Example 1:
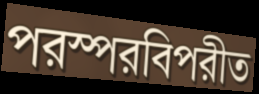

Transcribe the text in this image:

পরস্পরবিপরীত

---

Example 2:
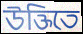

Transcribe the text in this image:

উক্তিতে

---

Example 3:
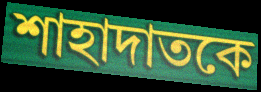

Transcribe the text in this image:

শাহাদাতকে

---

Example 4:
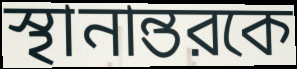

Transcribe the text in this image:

স্থানান্তরকে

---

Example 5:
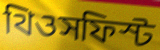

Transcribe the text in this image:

থিওসফিস্ট